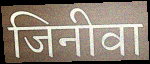
जिनीवा